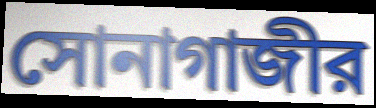
সোনাগাজীর